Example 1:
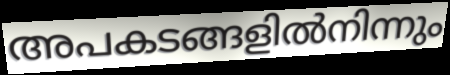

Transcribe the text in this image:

അപകടങ്ങളിൽനിന്നും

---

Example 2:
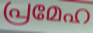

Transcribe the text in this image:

പ്രമേഹ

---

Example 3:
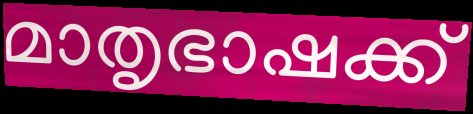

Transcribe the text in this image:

മാതൃഭാഷക്ക്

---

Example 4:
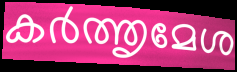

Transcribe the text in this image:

കർത്തൃമേശ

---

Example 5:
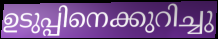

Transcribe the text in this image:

ഉടുപ്പിനെക്കുറിച്ചു